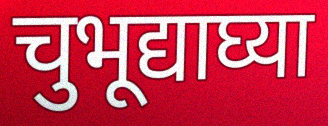
चुभूद्याघ्या